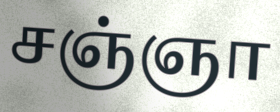
சஞ்ஞா